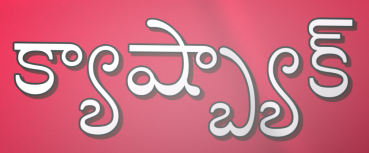
క్యాష్బ్యాక్